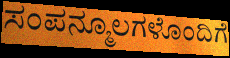
ಸಂಪನ್ಮೂಲಗಳೊಂದಿಗೆ